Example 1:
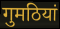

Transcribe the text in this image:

गुमठियां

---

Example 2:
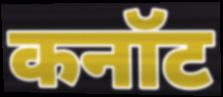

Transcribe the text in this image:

कनॉट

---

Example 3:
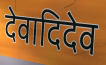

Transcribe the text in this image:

देवादिदेव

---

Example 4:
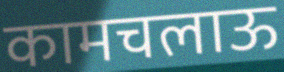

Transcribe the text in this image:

कामचलाऊ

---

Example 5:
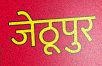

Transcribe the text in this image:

जेठूपुर